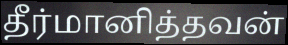
தீர்மானித்தவன்